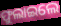
ଫୁଲାଇଲେ